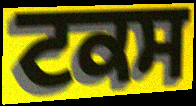
ਟਕਸ